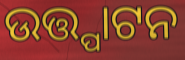
ଉତ୍ତ୍ପାଟନ